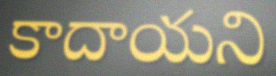
కాదాయని